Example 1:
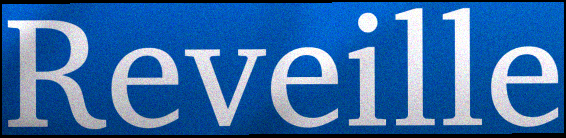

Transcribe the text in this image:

Reveille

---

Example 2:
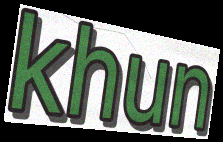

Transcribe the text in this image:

khun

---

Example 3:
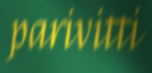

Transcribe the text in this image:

parivitti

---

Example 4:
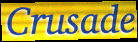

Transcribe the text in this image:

Crusade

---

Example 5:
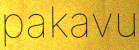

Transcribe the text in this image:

pakavu